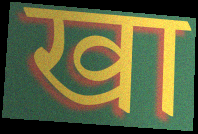
खा